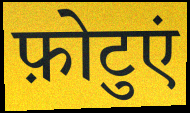
फ़ोटुएं